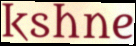
kshne